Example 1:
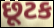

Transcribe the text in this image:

છૂટક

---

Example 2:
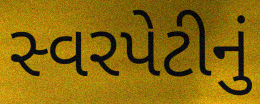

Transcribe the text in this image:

સ્વરપેટીનું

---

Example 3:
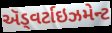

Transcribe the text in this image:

ઍડ્વર્ટાઇઝમેન્ટ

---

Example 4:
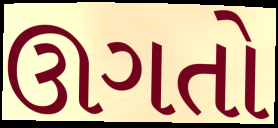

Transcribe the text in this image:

ઊગતો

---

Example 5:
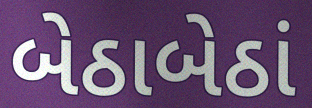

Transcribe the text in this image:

બેઠાબેઠાં